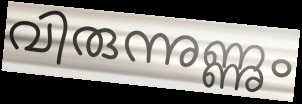
വിരുന്നുണ്ണും